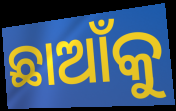
ଛାଆଁକୁ